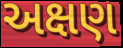
અક્ષણ